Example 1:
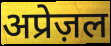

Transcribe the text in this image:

अप्रेज़ल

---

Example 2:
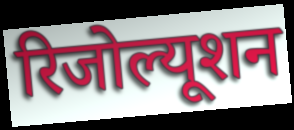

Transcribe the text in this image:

रिजोल्यूशन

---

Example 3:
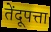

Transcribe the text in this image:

तेंदूपत्ता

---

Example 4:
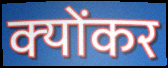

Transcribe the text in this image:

क्‍योंकर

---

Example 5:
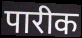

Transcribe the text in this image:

पारीक